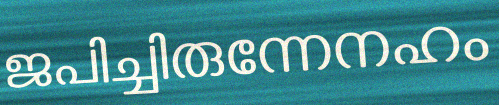
ജപിച്ചിരുന്നേനഹം